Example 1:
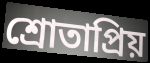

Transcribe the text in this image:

শ্রোতাপ্রিয়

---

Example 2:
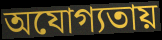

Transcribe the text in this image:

অযোগ্যতায়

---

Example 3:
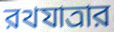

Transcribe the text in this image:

রথযাত্রার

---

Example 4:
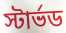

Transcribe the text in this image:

স্টার্ভড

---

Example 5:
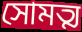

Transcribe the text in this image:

সোমত্ম